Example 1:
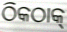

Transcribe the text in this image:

ଠିକଠାକ୍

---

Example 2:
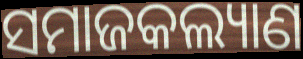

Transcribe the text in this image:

ସମାଜକଲ୍ୟାଣ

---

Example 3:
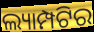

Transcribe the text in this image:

ଲ୍ୟାମ୍ପଟିର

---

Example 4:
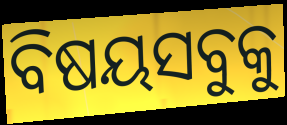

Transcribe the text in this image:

ବିଷୟସବୁକୁ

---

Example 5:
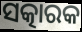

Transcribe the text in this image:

ସତ୍କାରକ